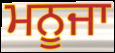
ਮਨੂਜਾ